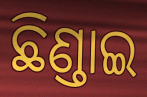
ଛିଣ୍ଡାଇ